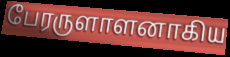
பேரருளாளனாகிய